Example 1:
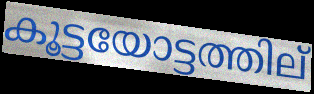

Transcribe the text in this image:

കൂട്ടയോട്ടത്തില്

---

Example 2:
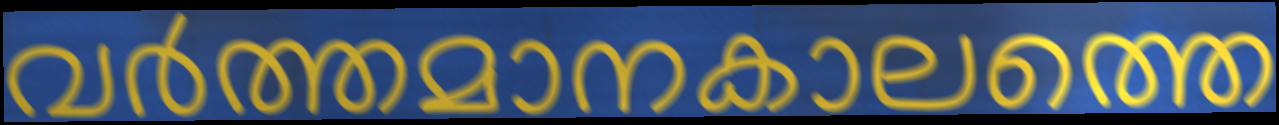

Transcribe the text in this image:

വർത്തമാനകാലത്തെ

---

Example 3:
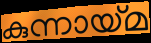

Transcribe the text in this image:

കുന്നായ്മ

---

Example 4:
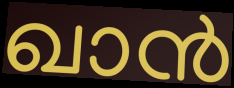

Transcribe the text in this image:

ഖാൻ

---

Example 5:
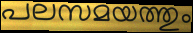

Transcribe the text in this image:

പലസമയത്തും